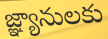
జ్ఞ్యానులకు